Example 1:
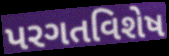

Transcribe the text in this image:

પરગતવિશેષ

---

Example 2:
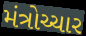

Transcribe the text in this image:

મંત્રોચ્ચાર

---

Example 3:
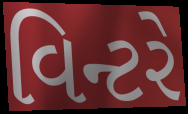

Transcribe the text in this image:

વિન્ટરે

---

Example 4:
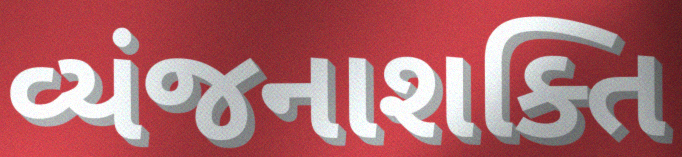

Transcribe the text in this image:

વ્યંજનાશક્તિ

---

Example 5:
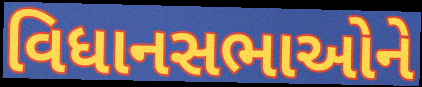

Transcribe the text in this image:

વિધાનસભાઓને